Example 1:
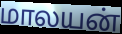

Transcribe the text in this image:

மாலயன்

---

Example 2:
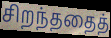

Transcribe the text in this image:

சிறந்ததைத்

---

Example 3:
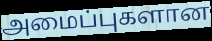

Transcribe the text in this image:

அமைப்புகளான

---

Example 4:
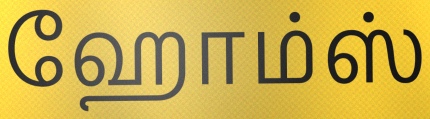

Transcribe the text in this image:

ஹோம்ஸ்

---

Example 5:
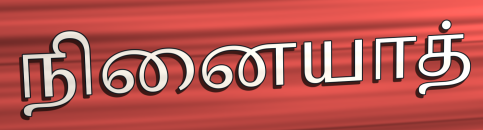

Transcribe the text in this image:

நினையாத்